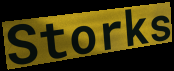
Storks